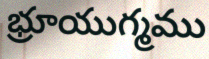
భ్రూయుగ్మము